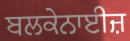
ਬਲਕੇਨਾਈਜ਼